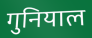
गुनियाल